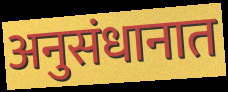
अनुसंधानात